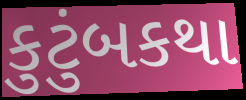
કુટુંબકથા